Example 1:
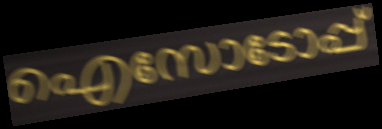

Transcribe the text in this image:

ഐസോടോപ്പ്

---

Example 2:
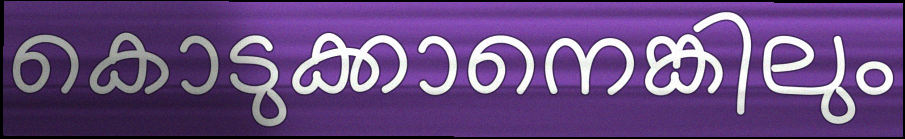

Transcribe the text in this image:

കൊടുക്കാനെങ്കിലും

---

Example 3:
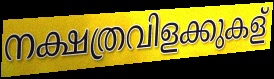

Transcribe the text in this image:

നക്ഷത്രവിളക്കുകള്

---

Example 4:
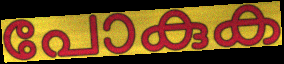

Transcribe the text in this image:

പോകുക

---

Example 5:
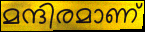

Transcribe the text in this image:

മന്ദിരമാണ്